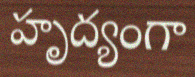
హృద్యంగా